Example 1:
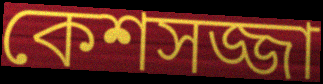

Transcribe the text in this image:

কেশসজ্জা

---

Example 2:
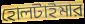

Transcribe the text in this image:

হোলটাইমার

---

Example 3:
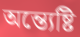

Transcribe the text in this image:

অন্ত্যেষ্টি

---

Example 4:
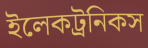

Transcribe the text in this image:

ইলেকট্রনিকস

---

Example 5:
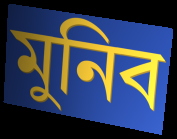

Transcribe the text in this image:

মুনিব